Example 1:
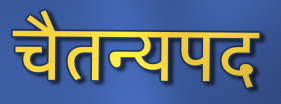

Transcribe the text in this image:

चैतन्यपद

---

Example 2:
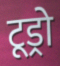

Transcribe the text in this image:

टूड्रो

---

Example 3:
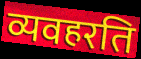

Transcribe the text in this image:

व्यवहरति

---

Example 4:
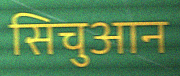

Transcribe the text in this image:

सिचुआन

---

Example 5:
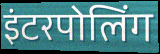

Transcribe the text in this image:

इंटरपोलिंग